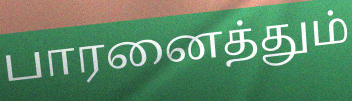
பாரனைத்தும்